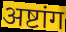
अष्टांग